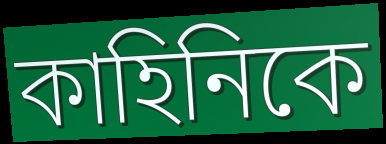
কাহিনিকে